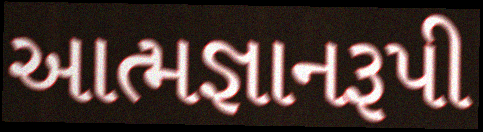
આત્મજ્ઞાનરૂપી